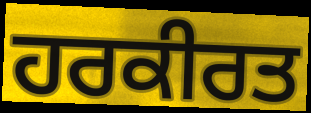
ਹਰਕੀਰਤ